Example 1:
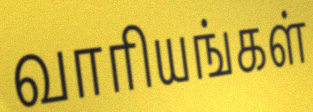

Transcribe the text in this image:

வாரியங்கள்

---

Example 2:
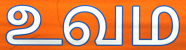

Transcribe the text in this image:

உவம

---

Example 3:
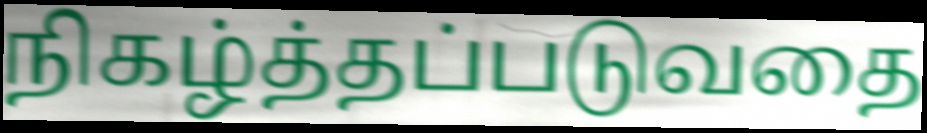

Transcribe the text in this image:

நிகழ்த்தப்படுவதை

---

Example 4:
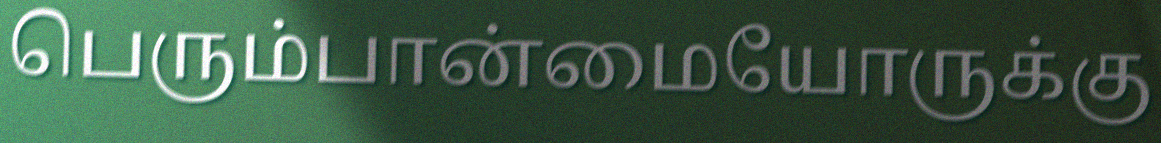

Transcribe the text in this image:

பெரும்பான்மையோருக்கு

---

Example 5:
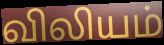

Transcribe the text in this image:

விலியம்